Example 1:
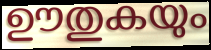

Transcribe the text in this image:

ഊതുകയും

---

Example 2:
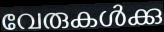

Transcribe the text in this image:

വേരുകൾക്കു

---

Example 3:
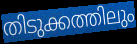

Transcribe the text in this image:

തിടുക്കത്തിലും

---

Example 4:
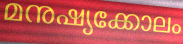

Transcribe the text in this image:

മനുഷ്യക്കോലം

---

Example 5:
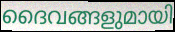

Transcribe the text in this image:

ദൈവങ്ങളുമായി